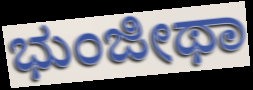
ಭುಂಜೀಥಾ